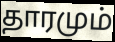
தாரமும்